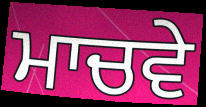
ਮਾਚਵੇ